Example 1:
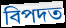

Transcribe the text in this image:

বিপদত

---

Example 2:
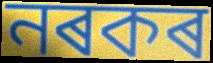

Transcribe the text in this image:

নৰকৰ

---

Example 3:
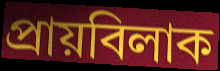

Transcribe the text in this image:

প্ৰায়বিলাক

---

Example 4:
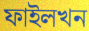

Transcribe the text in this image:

ফাইলখন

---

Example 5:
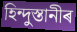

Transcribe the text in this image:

হিন্দুস্তানীৰ